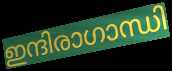
ഇന്ദിരാഗാന്ധി